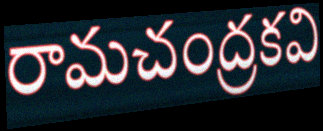
రామచంద్రకవి